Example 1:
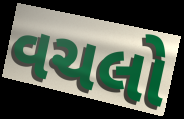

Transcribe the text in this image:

વચલો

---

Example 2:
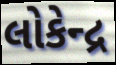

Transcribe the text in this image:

લોકેન્દ્ર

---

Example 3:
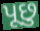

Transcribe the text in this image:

પૂછુ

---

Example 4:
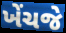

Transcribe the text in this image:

ખેંચજે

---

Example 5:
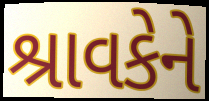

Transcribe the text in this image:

શ્રાવકેને